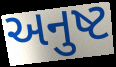
અનુષ્ટ